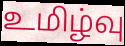
உமிழ்வு